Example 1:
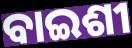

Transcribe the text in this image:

ବାଇଶୀ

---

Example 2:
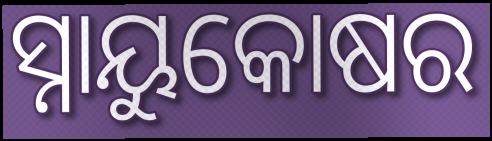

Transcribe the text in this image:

ସ୍ନାୟୁକୋଷର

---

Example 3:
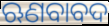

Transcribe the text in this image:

ଋଣବାବଦ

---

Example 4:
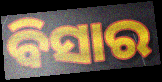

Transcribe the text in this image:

ବିସାର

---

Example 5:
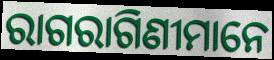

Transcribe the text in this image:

ରାଗରାଗିଣୀମାନେ